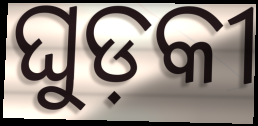
ଘୁଡ଼କୀ